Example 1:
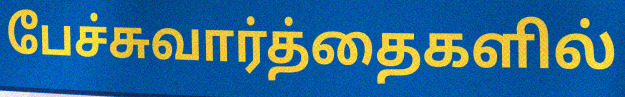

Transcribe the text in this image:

பேச்சுவார்த்தைகளில்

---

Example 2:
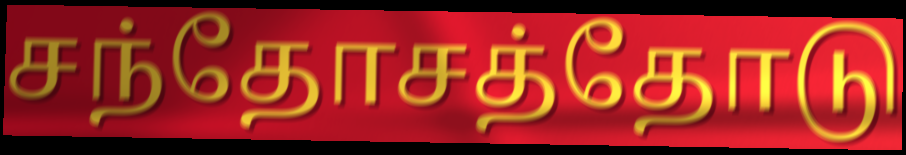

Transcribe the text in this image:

சந்தோசத்தோடு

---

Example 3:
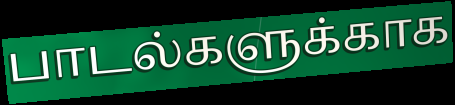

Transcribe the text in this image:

பாடல்களுக்காக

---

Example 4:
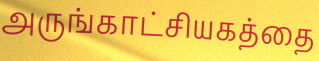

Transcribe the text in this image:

அருங்காட்சியகத்தை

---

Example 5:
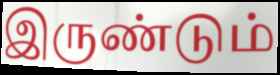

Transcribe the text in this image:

இருண்டும்